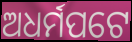
ଅଧର୍ମପଟେ